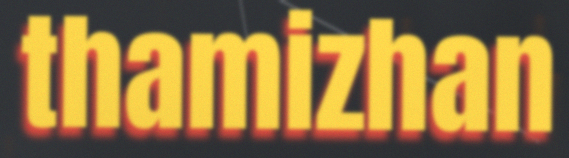
thamizhan